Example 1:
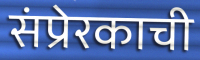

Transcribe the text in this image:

संप्रेरकाची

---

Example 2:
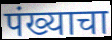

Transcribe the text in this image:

पंख्याचा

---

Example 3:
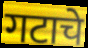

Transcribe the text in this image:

गटाचे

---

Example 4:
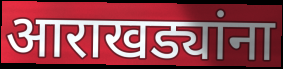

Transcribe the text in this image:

आराखड्यांना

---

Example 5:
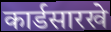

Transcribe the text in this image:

कार्डसारखे